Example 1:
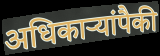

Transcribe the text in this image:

अधिकार्‍यांपैकी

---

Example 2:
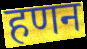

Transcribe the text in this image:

हणन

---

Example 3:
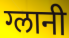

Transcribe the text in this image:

ग्लानी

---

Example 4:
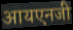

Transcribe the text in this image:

आयएनजी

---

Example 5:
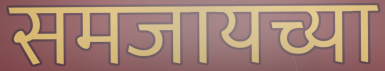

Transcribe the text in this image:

समजायच्या